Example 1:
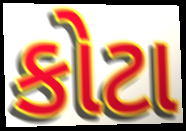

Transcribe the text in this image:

કોટા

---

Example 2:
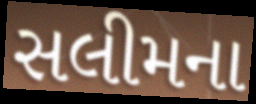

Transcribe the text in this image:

સલીમના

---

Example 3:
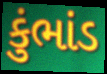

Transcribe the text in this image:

કુંભાંડ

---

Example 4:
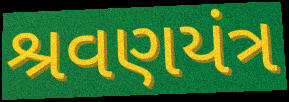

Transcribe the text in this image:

શ્રવણયંત્ર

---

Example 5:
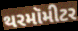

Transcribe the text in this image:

થરમૉમીટર